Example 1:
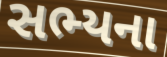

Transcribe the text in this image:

સભ્યના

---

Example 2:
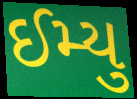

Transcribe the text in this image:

ઈમ્યુ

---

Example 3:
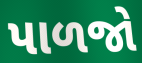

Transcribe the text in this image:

પાળજો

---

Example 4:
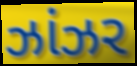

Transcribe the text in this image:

ઝાંઝર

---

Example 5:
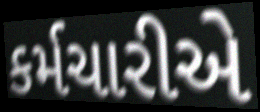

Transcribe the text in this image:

કર્મચારીએ